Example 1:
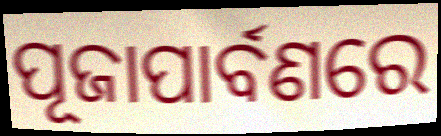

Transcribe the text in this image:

ପୂଜାପାର୍ବଣରେ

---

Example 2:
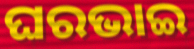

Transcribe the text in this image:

ଘରଭାଇ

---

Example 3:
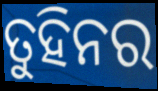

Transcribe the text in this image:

ତୁହିନର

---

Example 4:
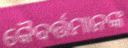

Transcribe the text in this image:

କୈବର୍ତ୍ତମାନଙ୍କ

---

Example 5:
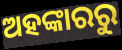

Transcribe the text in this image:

ଅହଙ୍କାରରୁ